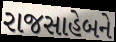
રાજસાહેબને